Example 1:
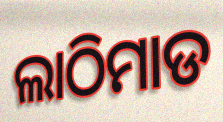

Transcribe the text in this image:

ଲାଠିମାଡ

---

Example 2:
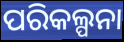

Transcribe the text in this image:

ପରିକଲ୍ପନା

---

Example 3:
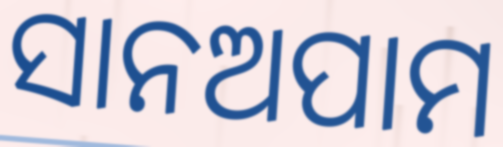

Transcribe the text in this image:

ସାନଅପାମ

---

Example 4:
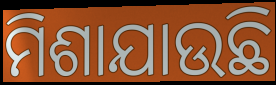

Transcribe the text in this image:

ମିଶାଯାଉଛି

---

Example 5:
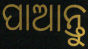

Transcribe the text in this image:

ପାଆନ୍ତୁ